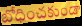
బోధించకుండా